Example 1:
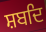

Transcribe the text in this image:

ਸ਼ਬਦਿ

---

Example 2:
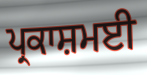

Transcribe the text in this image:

ਪ੍ਰਕਾਸ਼ਮਈ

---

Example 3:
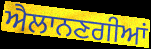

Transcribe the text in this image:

ਐਲਾਨਣਗੀਆਂ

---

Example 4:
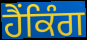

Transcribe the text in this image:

ਹੈਂਕਿੰਗ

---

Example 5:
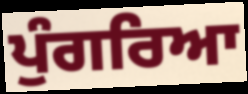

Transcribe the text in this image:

ਪੁੰਗਰਿਆ